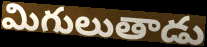
మిగులుతాడు